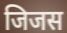
जिजस